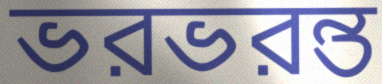
ভরভরন্ত